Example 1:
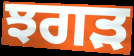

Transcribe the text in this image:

ਝਗੜ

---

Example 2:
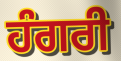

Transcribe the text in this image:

ਹੰਗਰੀ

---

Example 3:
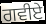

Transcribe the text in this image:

ਗਵੀਏ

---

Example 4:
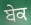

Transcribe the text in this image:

ਬੇਕ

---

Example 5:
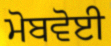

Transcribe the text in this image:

ਮੋਬਵੋਈ